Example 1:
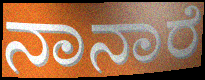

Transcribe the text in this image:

ನಾನಾರೆ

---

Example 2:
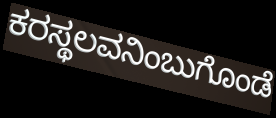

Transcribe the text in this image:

ಕರಸ್ಥಲವನಿಂಬುಗೊಂಡೆ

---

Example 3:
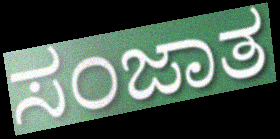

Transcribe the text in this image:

ಸಂಜಾತ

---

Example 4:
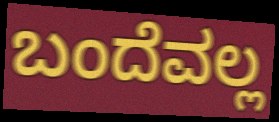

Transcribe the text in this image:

ಬಂದೆವಲ್ಲ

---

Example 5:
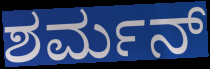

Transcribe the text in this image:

ಶರ್ಮನ್